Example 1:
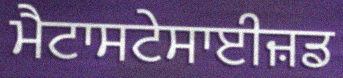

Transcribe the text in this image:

ਮੈਟਾਸਟੇਸਾਈਜ਼ਡ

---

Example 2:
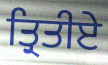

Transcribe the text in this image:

ਤ੍ਰਿਤੀਏ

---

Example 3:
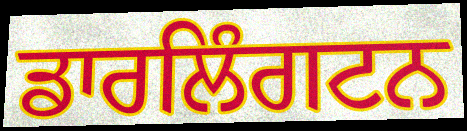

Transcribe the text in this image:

ਡਾਰਲਿੰਗਟਨ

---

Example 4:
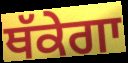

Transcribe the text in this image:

ਥੱਕੇਗਾ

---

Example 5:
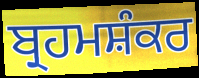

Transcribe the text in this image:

ਬ੍ਰਹਮਸ਼ੰਕਰ